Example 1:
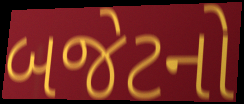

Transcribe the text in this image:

બજેટનો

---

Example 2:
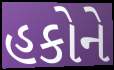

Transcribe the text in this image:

હકોને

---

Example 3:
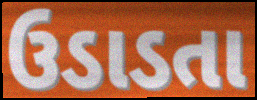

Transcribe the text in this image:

ઉડાડતા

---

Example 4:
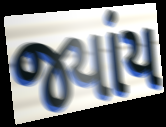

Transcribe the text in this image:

જ્યાંય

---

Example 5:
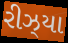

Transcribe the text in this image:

રીઝ્યા